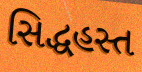
સિદ્ધહસ્ત